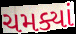
ચમક્યાં